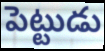
పెట్టుడు